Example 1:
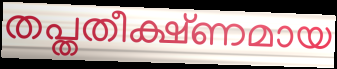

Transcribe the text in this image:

തപ്തതീക്ഷ്ണമായ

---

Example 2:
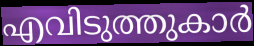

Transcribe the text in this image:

എവിടുത്തുകാർ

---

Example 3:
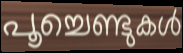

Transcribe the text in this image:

പൂച്ചെണ്ടുകൾ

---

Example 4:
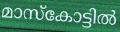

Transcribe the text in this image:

മാസ്കോട്ടിൽ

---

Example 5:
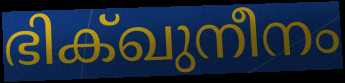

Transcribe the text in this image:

ഭിക്ഖുനീനം